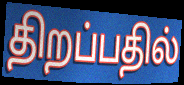
திறப்பதில்